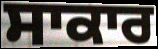
ਸਾਕਾਰ